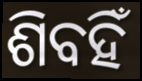
ଶିବହିଁ